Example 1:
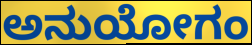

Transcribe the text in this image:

ಅನುಯೋಗಂ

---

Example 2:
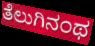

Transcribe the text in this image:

ತೆಲುಗಿನಂಥ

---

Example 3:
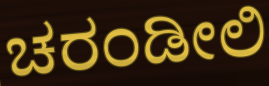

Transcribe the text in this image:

ಚರಂಡೀಲಿ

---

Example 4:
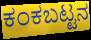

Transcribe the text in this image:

ಕಂಕಬಟ್ಟನ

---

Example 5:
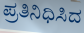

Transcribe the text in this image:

ಪ್ರತಿನಿಧಿಸಿದ